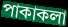
পাকাকলা